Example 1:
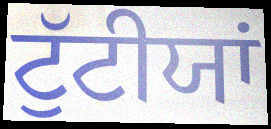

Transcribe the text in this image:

ਟੁੱਟੀਯਾਂ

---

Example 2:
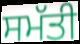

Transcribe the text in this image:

ਸਮੱਤੀ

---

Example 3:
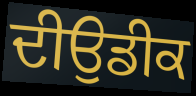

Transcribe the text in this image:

ਦੀਉਡੀਕ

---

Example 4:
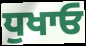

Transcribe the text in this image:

ਧੁਖਾਓ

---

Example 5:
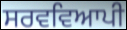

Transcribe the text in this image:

ਸਰਵਵਿਆਪੀ